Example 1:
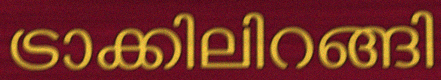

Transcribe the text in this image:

ട്രാക്കിലിറങ്ങി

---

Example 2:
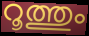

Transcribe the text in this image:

റൂത്തും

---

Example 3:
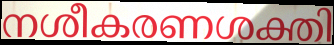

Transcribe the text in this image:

നശീകരണശക്തി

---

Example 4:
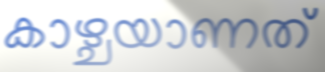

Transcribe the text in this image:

കാഴ്ചയാണത്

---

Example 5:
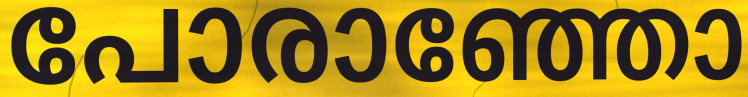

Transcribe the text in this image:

പോരാഞ്ഞോ